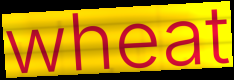
wheat